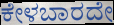
ಕೇಳಬಾರದೇ